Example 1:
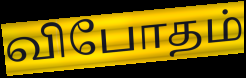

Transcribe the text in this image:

விபோதம்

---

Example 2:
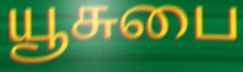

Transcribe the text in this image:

யூசுபை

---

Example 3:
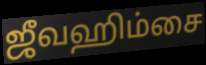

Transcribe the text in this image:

ஜீவஹிம்சை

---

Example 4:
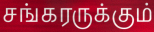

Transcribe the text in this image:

சங்கரருக்கும்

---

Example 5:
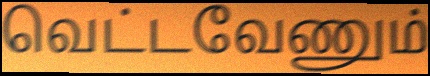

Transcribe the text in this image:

வெட்டவேணும்